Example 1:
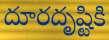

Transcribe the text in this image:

దూరదృష్టికి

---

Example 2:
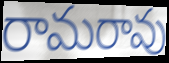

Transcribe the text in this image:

రామరావు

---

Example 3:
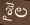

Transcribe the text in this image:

శైల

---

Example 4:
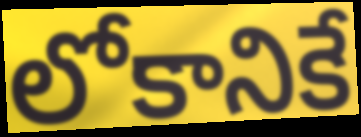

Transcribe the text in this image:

లోకానికే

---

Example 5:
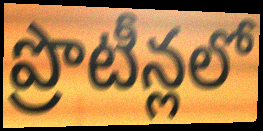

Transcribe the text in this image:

ప్రొటీన్లలో